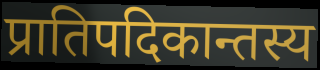
प्रातिपदिकान्तस्य